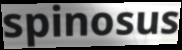
spinosus